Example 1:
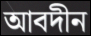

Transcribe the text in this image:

আবদীন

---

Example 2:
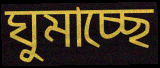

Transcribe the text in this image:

ঘুমাচ্ছে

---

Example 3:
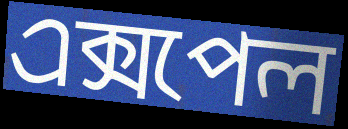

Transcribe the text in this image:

এক্সপেল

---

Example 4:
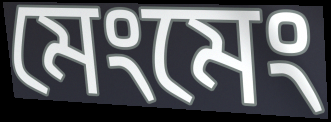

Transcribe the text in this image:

মেংমেং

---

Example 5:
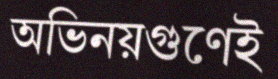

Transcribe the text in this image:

অভিনয়গুণেই